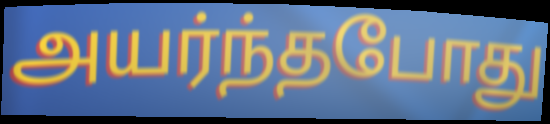
அயர்ந்தபோது